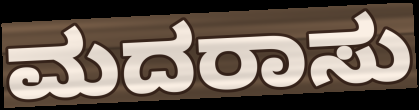
ಮದರಾಸು